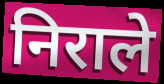
निराले